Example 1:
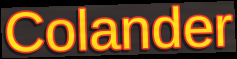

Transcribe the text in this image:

Colander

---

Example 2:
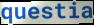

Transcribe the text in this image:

questia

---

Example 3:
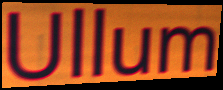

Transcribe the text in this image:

Ullum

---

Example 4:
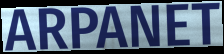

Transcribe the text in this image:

ARPANET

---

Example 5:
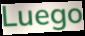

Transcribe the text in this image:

Luego